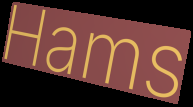
Hams